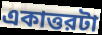
একাত্তরটা